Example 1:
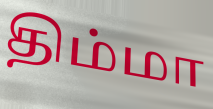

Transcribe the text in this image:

திம்மா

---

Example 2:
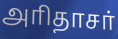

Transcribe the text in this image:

அரிதாசர்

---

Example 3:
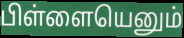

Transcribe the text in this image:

பிள்ளையெனும்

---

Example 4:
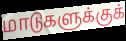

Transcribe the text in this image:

மாடுகளுக்குக்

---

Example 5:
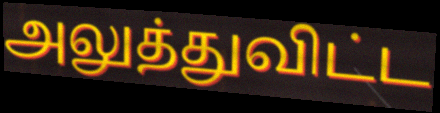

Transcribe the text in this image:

அலுத்துவிட்ட